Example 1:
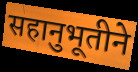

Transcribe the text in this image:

सहानुभूतीने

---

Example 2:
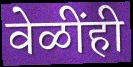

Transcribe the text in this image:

वेळींही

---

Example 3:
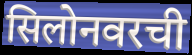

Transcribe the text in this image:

सिलोनवरची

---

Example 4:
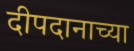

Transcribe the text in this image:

दीपदानाच्या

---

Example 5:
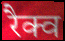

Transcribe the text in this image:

रैक्व